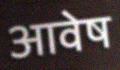
आवेष